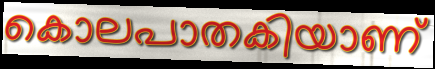
കൊലപാതകിയാണ്